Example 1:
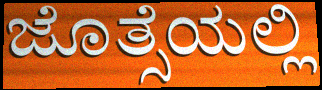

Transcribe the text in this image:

ಜೊತ್ಸೆಯಲ್ಲಿ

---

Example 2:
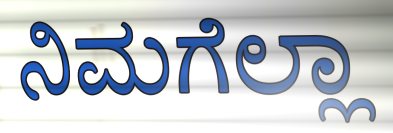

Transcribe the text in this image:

ನಿಮಗೆಲ್ಲಾ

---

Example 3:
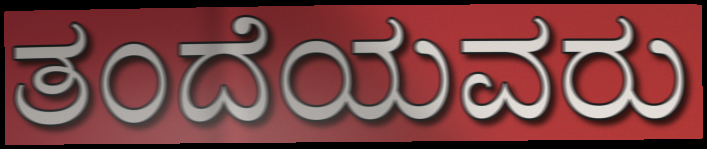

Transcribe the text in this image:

ತಂದೆಯವರು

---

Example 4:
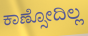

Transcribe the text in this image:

ಕಾಣ್ಸೋದಿಲ್ಲ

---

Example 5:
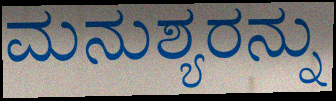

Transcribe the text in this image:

ಮನುಶ್ಯರನ್ನು